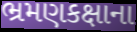
ભ્રમણકક્ષાના